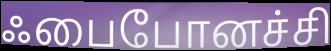
ஃபைபோனச்சி